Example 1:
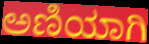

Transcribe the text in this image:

ಅಣಿಯಾಗಿ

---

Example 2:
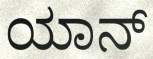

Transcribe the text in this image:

ಯಾನ್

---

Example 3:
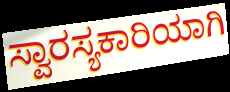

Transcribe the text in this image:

ಸ್ವಾರಸ್ಯಕಾರಿಯಾಗಿ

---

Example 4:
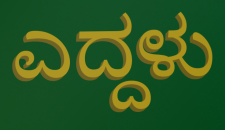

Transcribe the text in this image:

ಎದ್ದಳು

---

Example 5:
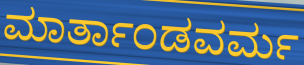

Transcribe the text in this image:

ಮಾರ್ತಾಂಡವರ್ಮ